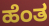
ಹೆಂತ